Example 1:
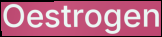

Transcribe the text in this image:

Oestrogen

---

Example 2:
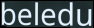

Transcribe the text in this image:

beledu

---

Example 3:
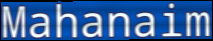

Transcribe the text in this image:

Mahanaim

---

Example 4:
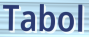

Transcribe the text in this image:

Tabol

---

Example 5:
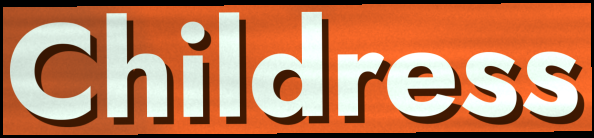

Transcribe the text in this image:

Childress